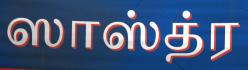
ஸாஸ்த்ர